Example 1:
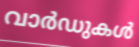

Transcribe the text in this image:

വാർഡുകൾ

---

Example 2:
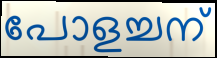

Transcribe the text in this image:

പോളച്ചന്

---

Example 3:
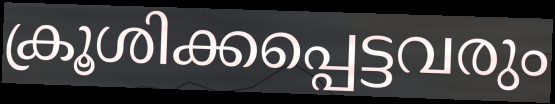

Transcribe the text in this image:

ക്രൂശിക്കപ്പെട്ടവരും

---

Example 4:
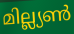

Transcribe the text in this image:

മില്ല്യൺ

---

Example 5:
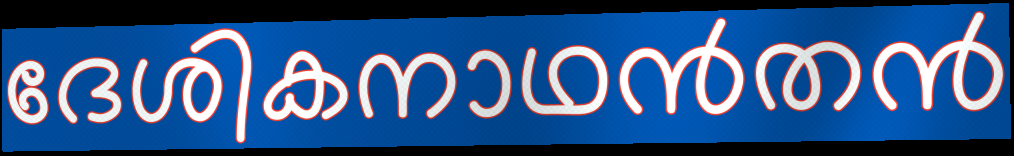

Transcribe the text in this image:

ദേശികനാഥൻതൻ